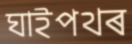
ঘাইপথৰ